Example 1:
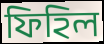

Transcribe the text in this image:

ফিহিল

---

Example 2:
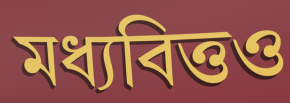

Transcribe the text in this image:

মধ্যবিত্তও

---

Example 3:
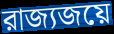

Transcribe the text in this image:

রাজ্যজয়ে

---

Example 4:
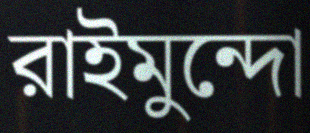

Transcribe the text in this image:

রাইমুন্দো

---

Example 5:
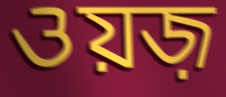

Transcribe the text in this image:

ওয়জ়